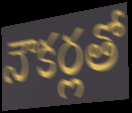
నౌకర్లతో